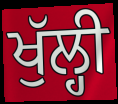
ਖੁੱਲ੍ਹੀ